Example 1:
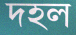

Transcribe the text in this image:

দহল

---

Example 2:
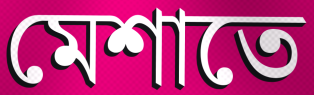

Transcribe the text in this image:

মেশাতে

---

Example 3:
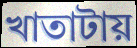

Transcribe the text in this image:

খাতাটায়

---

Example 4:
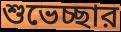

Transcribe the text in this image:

শুভেচ্ছার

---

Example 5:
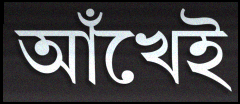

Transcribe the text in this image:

আঁখেই